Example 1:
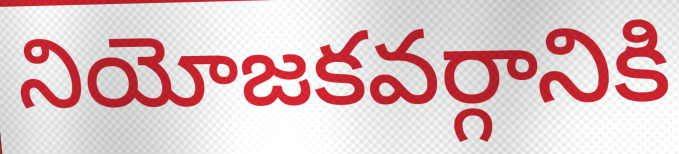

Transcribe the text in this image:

నియోజకవర్గానికి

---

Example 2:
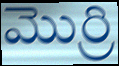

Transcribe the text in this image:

మొర్రి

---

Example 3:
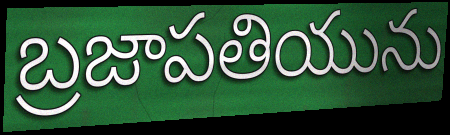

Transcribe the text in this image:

బ్రజాపతియును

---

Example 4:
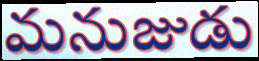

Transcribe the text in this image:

మనుజుడు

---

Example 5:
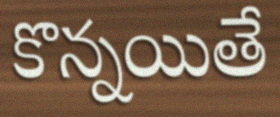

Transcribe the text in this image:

కొన్నయితే